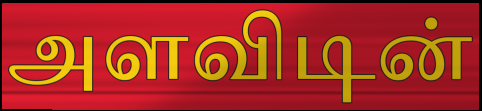
அளவிடின்